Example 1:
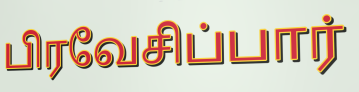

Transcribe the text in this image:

பிரவேசிப்பார்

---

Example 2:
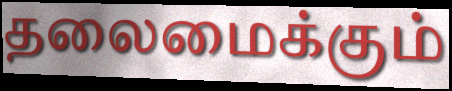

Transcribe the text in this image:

தலைமைக்கும்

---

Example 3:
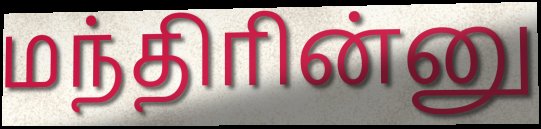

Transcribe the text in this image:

மந்திரின்னு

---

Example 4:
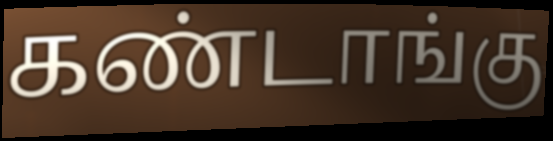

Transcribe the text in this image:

கண்டாங்கு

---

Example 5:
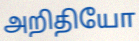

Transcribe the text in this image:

அறிதியோ